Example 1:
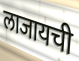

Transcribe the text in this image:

लाजायची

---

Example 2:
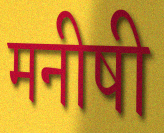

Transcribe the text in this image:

मनीषी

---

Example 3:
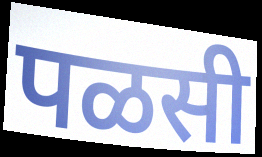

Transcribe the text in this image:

पळसी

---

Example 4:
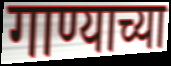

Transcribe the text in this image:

गाण्याच्या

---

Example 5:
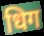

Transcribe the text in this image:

धिग